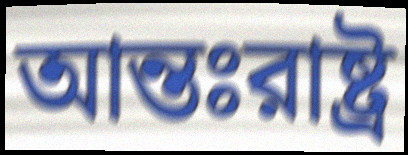
আন্তঃরাষ্ট্র